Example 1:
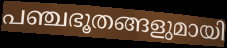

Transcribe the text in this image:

പഞ്ചഭൂതങ്ങളുമായി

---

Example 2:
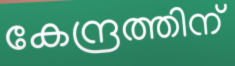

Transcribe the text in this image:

കേന്ദ്രത്തിന്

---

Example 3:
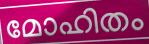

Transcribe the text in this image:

മോഹിതം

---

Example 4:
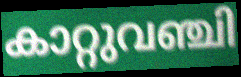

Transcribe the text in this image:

കാറ്റുവഞ്ചി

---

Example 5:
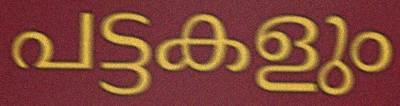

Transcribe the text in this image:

പട്ടകളും